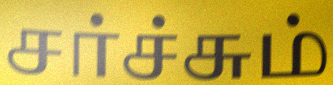
சர்ச்சும்